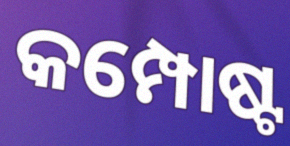
କମ୍ପୋଷ୍ଟ